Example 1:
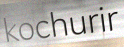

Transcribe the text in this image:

kochurir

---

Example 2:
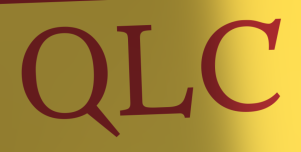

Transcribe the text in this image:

QLC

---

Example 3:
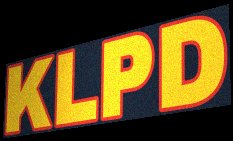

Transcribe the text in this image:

KLPD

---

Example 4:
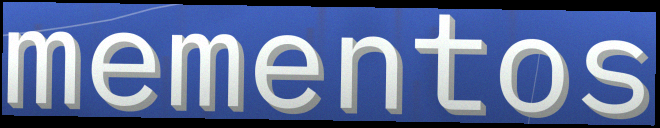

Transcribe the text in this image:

mementos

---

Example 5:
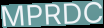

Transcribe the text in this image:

MPRDC